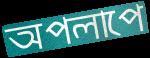
অপলাপে